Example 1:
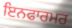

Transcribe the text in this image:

ਇਨਫਾਰਮਰ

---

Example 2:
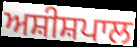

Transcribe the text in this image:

ਅਸ਼ੀਸ਼ਪਾਲ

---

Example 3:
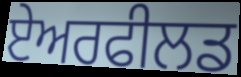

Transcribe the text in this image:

ਏਅਰਫੀਲਡ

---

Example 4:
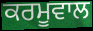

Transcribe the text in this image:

ਕਰਮੂਵਾਲ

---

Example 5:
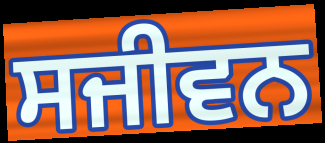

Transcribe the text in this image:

ਸਜੀਵਨ